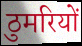
ठुमरियों